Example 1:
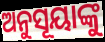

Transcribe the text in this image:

ଅନୁସୂୟାଙ୍କୁ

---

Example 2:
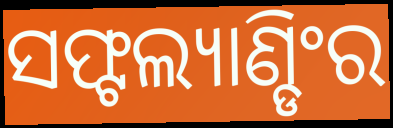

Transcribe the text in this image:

ସଫ୍ଟଲ୍ୟାଣ୍ଡିଂର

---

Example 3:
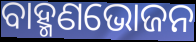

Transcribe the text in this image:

ବାହ୍ମଣଭୋଜନ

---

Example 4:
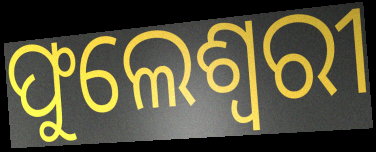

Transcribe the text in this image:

ଫୁଲେଶ୍ବରୀ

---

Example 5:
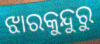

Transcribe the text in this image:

ଝାରକୁନ୍ଦୁରୁ